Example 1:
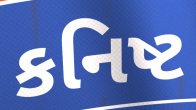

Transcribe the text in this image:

કનિષ્ટ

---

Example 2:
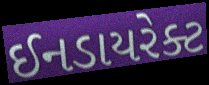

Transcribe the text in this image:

ઈનડાયરેક્ટ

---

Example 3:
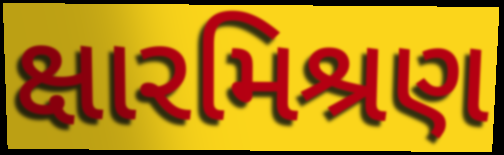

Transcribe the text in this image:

ક્ષારમિશ્રણ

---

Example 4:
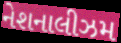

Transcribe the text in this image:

નેશનાલીઝમ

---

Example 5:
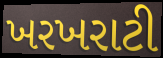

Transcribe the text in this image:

ખરખરાટી